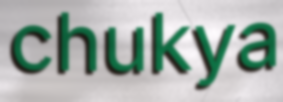
chukya